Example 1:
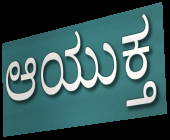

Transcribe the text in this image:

ಆಯುಕ್ತ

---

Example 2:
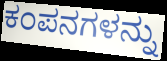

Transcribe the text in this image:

ಕಂಪನಗಳನ್ನು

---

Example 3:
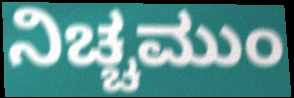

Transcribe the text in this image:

ನಿಚ್ಚಮುಂ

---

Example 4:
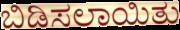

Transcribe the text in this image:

ಬಿಡಿಸಲಾಯಿತು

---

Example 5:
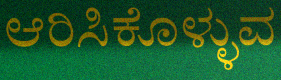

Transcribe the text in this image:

ಆರಿಸಿಕೊಳ್ಳುವ